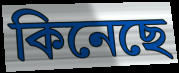
কিনেছে